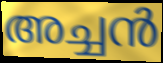
അച്ചൻ